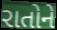
રાતોને